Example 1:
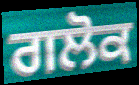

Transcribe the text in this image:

ਗਲੋਕ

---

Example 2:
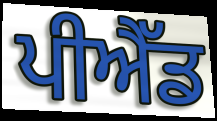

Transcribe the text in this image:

ਪੀਐੱਡ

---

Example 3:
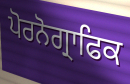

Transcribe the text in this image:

ਪੋਰਨੋਗ੍ਰਾਫਿਕ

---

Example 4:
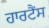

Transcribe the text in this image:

ਹਾਰਟੈਂਸ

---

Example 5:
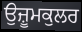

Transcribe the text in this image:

ਉਜ਼ੂਮਕੁਲਰ